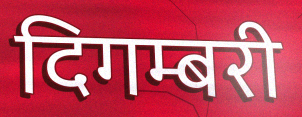
दिगम्बरी